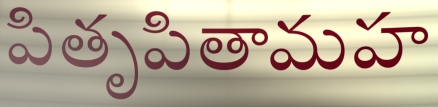
పితృపితామహ